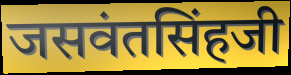
जसवंतसिंहजी